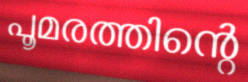
പൂമരത്തിന്റെ